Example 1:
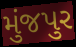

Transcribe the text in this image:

મુંજપુર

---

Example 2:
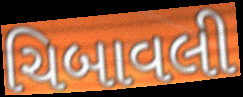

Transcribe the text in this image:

ચિબાવલી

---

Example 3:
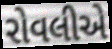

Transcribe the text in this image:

રોવલીએ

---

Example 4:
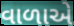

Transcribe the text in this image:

વાળાએ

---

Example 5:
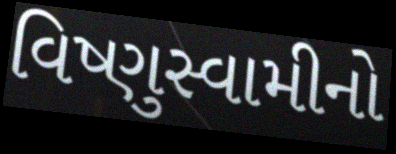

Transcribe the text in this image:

વિષ્ણુસ્વામીનો